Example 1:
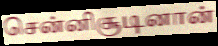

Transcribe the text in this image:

சென்னிசூடினான்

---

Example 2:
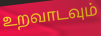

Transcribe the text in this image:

உறவாடவும்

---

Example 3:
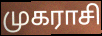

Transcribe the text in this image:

முகராசி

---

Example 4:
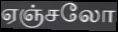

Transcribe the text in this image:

ஏஞ்சலோ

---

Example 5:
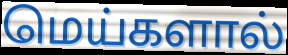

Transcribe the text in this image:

மெய்களால்